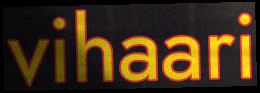
vihaari